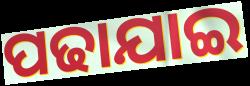
ପଢାଯାଇ